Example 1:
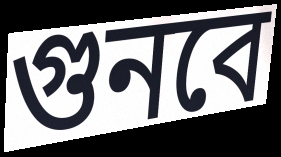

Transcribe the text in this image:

গুনবে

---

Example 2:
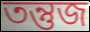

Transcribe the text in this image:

তন্তুজ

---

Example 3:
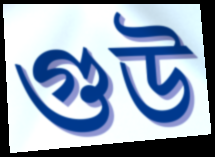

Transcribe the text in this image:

গুউ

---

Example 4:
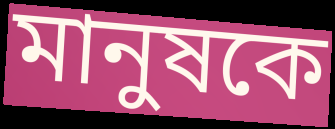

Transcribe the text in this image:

মানুষকে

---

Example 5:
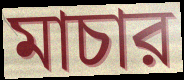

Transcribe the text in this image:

মাচার